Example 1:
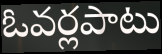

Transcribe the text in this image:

ఓవర్లపాటు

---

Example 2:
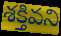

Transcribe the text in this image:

శక్తివని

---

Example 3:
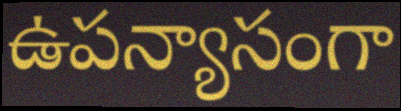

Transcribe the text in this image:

ఉపన్యాసంగా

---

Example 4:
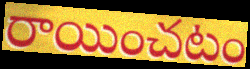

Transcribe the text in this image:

రాయించటం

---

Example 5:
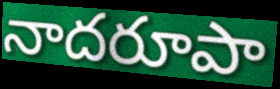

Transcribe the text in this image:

నాదరూపా